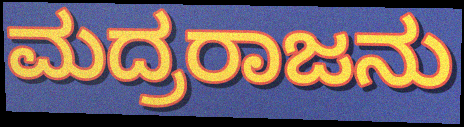
ಮದ್ರರಾಜನು